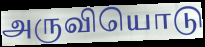
அருவியொடு